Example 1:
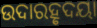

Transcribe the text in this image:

ଉଦାରହୃଦୟା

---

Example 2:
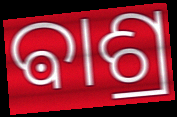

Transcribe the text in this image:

ଵାଶ୍ର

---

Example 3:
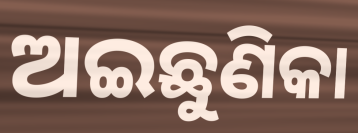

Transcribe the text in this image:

ଅଇଛୁଣିକା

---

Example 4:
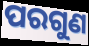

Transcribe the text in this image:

ପରଗୁଣ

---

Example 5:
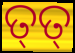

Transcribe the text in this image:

ତ୍‌ତ୍